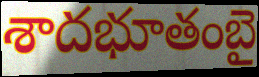
శాదభూతంబై